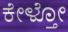
ಕೇಳ್ತೋ